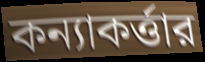
কন্যাকর্ত্তার